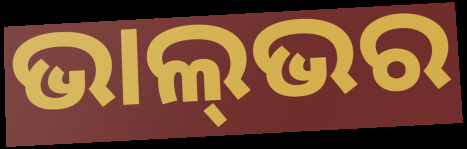
ଭାଲ୍‌ଭର